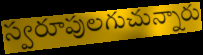
స్వరూపులగుచున్నారు